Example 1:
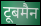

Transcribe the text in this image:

टूबमैन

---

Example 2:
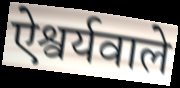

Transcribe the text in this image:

ऐश्वर्यवाले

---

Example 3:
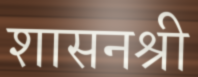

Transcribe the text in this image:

शासनश्री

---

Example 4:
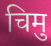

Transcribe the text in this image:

चिमु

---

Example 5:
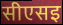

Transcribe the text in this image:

सीएसइ